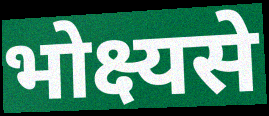
भोक्ष्यसे